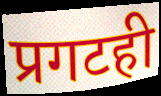
प्रगटही